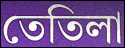
তেতিলা